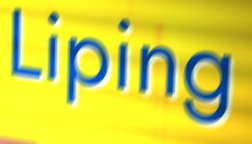
Liping